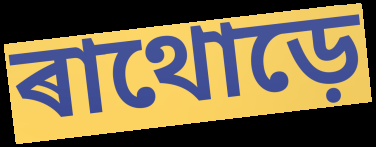
ৰাথোড়ে